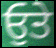
ਓੁਤੇ